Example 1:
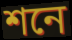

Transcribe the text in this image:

শনে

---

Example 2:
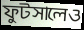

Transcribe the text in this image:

ফুটসালেও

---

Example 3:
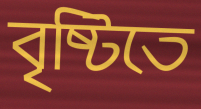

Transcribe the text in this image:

বৃষ্টিতে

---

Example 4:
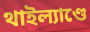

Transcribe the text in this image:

থাইল্যাণ্ডে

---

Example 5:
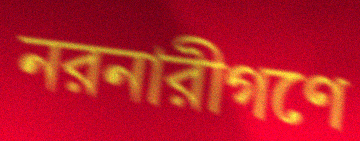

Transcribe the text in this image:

নরনারীগণে